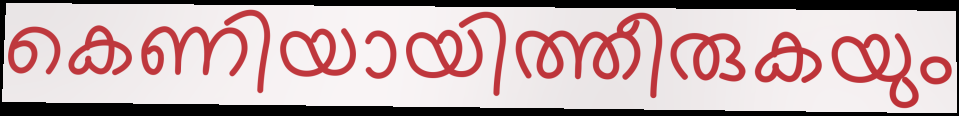
കെണിയായിത്തീരുകയും